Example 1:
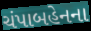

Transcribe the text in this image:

ચંપાબહેનના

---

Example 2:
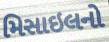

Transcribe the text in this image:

મિસાઇલનો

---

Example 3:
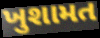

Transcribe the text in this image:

ખુશામત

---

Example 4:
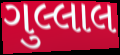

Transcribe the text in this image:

ગુલ્લાલ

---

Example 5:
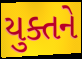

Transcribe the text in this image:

યુક્તને